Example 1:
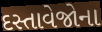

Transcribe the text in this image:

દસ્તાવેજોના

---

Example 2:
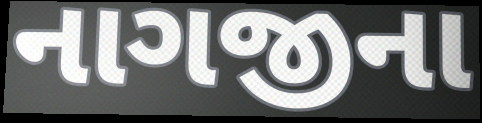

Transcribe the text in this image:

નાગજીના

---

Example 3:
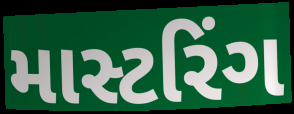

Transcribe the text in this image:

માસ્ટરિંગ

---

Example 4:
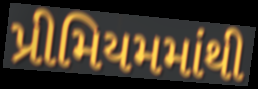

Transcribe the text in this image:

પ્રીમિયમમાંથી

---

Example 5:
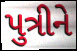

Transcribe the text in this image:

પુત્રીને